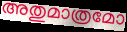
അതുമാത്രമോ